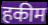
हकीम